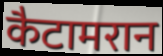
कैटामरान